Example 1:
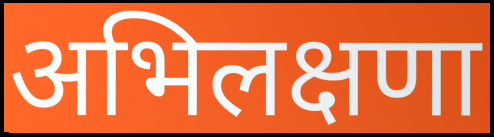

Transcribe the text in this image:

अभिलक्षणा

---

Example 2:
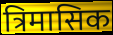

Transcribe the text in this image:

त्रिमासिक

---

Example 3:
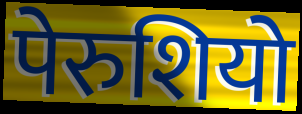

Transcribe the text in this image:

पेरुशियो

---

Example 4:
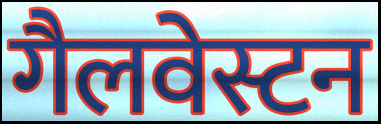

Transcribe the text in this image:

गैलवेस्टन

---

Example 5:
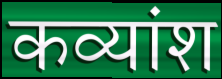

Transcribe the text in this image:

कव्यांश